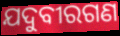
ଯଦୁବୀରଗଣ